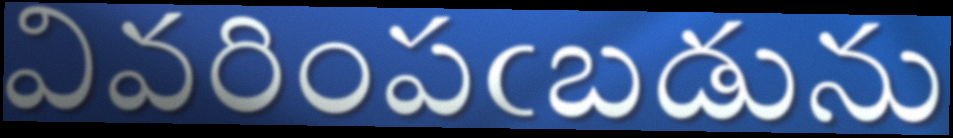
వివరింపఁబడును